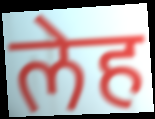
लेह